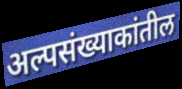
अल्पसंख्याकांतील